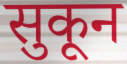
सुकून